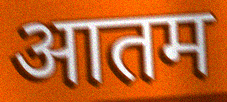
आतम